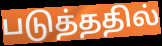
படுத்ததில்